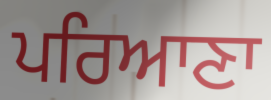
ਪਰਿਆਣਾ